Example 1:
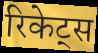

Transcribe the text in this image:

रिकेट्स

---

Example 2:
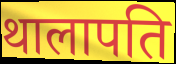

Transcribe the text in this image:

थालापति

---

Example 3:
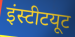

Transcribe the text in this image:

इंस्टीटयूट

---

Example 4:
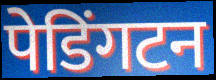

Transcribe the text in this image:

पेडिंगटन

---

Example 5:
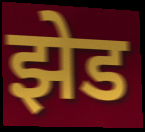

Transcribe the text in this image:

झेड